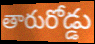
తారురోడ్డు